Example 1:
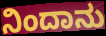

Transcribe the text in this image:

ನಿಂದಾನು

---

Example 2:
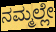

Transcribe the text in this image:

ನಮ್ಮಲ್ಲೇ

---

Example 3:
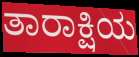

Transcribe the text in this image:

ತಾರಾಕ್ಷಿಯ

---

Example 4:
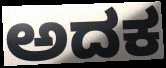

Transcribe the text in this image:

ಅದಕ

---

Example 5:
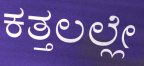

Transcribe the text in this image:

ಕತ್ತಲಲ್ಲೇ